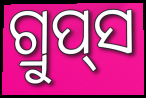
ଗ୍ରୁପ୍‌ସ